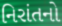
નિરાંતનો